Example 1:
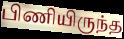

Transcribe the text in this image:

பிணியிருந்த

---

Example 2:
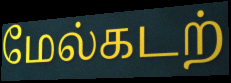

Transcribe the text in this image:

மேல்கடற்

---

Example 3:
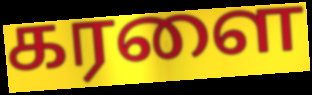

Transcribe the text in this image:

கரளை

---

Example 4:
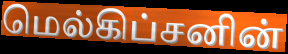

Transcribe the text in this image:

மெல்கிப்சனின்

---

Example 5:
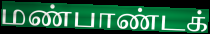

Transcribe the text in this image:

மண்பாண்டக்